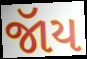
જૉય